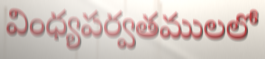
వింధ్యపర్వతములలో